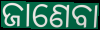
ଜାଣେବା